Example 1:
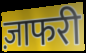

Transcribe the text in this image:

ज़ाफरी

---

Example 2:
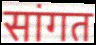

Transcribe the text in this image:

सांगत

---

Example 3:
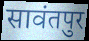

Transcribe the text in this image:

सावंतपुर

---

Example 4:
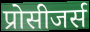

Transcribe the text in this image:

प्रोसीजर्स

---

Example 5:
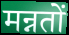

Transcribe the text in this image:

मन्नतों